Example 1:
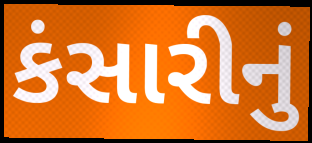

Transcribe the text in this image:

કંસારીનું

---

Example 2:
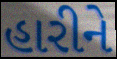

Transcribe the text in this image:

હારીને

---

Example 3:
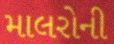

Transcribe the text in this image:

માલરોની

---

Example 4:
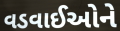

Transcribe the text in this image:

વડવાઈઓને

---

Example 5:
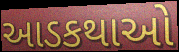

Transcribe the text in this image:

આડકથાઓ